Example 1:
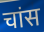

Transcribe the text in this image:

चांस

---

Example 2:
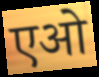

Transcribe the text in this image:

एओ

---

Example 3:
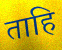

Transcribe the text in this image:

ताहि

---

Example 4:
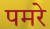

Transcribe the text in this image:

पमरे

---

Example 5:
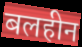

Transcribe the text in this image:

बलहीन